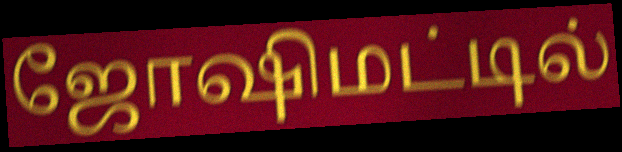
ஜோஷிமட்டில்